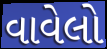
વાવેલો